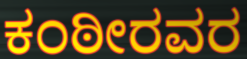
ಕಂಠೀರವರ